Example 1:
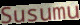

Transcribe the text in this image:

Susumu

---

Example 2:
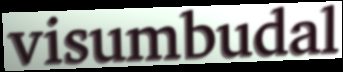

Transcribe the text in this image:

visumbudal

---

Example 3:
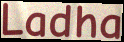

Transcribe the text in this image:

Ladha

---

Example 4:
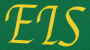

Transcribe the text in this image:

EIS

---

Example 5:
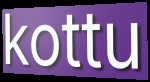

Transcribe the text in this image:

kottu